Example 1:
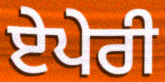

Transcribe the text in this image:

ਏਪੇਰੀ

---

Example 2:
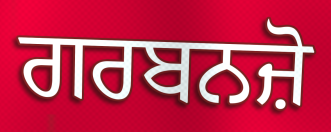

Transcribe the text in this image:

ਗਰਬਨਜ਼ੋ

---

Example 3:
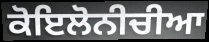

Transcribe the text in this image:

ਕੋਇਲੋਨੀਚੀਆ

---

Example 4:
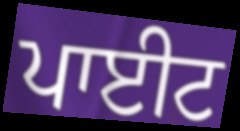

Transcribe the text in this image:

ਪਾਈਟ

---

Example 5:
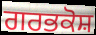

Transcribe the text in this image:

ਗਰਭਕੋਸ਼